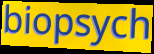
biopsych